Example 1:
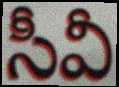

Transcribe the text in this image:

సీవీ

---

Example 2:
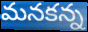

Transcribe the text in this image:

మనకన్న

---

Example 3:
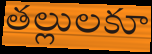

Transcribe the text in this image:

తల్లులకూ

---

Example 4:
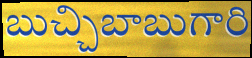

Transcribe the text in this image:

బుచ్చిబాబుగారి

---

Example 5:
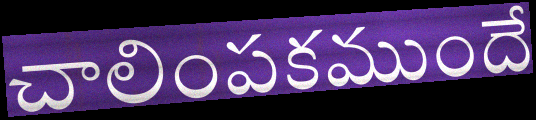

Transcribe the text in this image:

చాలింపకముందే